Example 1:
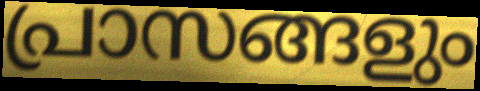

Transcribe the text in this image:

പ്രാസങ്ങളും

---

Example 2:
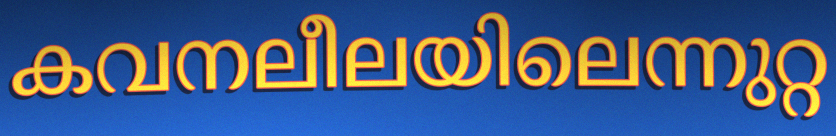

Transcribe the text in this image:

കവനലീലയിലെന്നുറ്റ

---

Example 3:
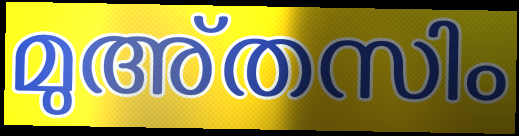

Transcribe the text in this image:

മുഅ്തസിം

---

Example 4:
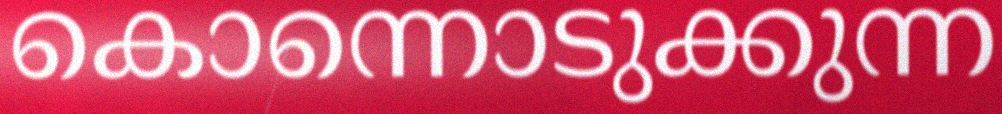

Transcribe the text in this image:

കൊന്നൊടുക്കുന്ന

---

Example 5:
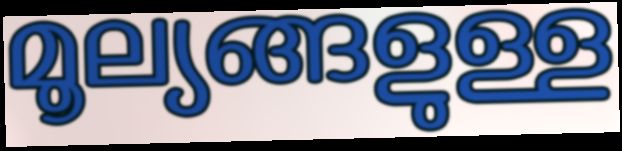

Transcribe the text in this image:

മൂല്യങ്ങളുള്ള